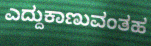
ಎದ್ದುಕಾಣುವಂತಹ